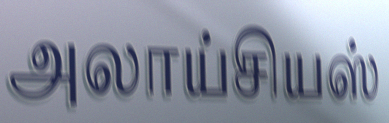
அலாய்சியஸ்